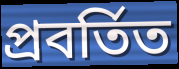
প্রবর্তিত